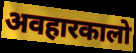
अवहारकालो